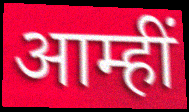
आम्हीं